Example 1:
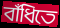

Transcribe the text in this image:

বাঁধিতে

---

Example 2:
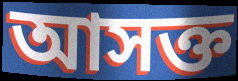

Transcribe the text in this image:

আসক্ত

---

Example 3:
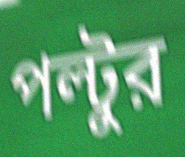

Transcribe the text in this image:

পল্টুর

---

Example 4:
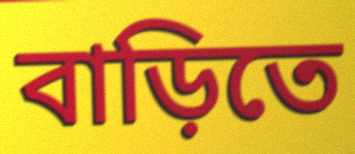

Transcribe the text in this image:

বাড়িতে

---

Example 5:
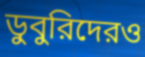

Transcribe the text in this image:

ডুবুরিদেরও